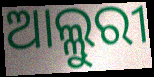
ଆଲ୍ଲୁରୀ